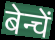
बेन्चें